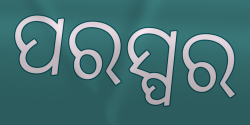
ପରସ୍ପର